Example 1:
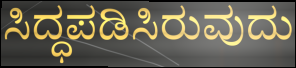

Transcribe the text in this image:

ಸಿದ್ಧಪಡಿಸಿರುವುದು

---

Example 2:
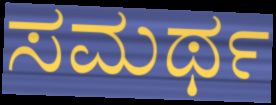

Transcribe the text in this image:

ಸಮರ್ಥ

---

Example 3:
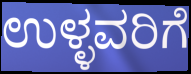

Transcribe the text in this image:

ಉಳ್ಳವರಿಗೆ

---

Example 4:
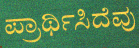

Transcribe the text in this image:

ಪ್ರಾರ್ಥಿಸಿದೆವು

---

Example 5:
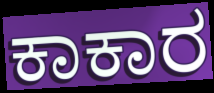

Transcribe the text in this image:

ಕಾಕಾರ